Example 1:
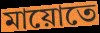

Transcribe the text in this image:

মায়োতে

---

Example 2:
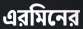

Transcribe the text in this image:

এরমিনের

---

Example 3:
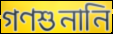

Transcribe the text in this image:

গণশুনানি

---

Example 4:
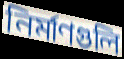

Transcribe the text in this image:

নির্মাণগুলি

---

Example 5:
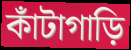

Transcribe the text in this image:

কাঁটাগাড়ি